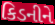
કિડનીને